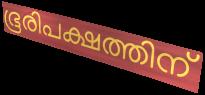
ഭൂരിപക്ഷത്തിന്